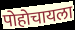
पोहोचायला